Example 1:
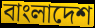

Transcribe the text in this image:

বাংলাদেশ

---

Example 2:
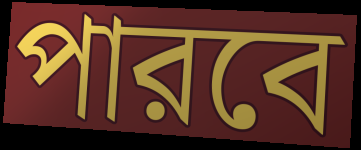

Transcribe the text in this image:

পারবে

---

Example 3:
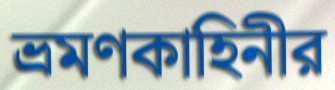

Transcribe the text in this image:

ভ্রমণকাহিনীর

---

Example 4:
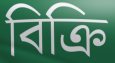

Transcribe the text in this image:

বিক্রি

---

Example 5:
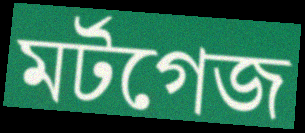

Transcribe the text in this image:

মর্টগেজ